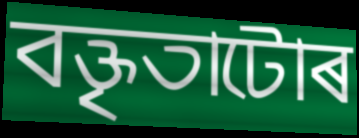
বক্তৃতাটোৰ